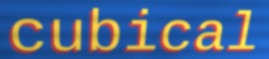
cubical